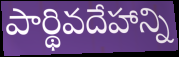
పార్థివదేహాన్ని